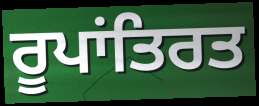
ਰੂਪਾਂਤਿਰਤ